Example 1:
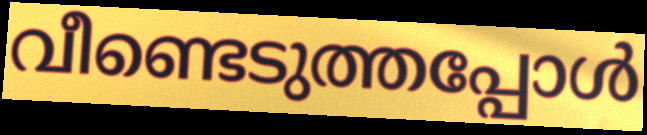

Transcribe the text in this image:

വീണ്ടെടുത്തപ്പോൾ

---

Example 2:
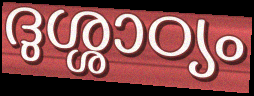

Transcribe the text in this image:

ദുശ്ശാഠ്യം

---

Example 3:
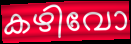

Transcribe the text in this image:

കഴിവോ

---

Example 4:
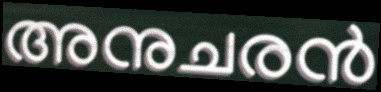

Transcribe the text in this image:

അനുചരൻ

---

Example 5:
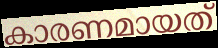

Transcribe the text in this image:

കാരണമായത്